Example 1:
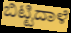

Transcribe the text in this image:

ಬಿಟ್ಟಿದಾಳೆ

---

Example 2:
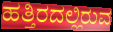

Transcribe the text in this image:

ಹತ್ತಿರದಲ್ಲಿರುವ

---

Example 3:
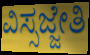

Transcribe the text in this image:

ವಿಸ್ಸಜ್ಜೇತಿ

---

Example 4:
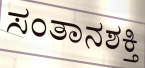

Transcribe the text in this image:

ಸಂತಾನಶಕ್ತಿ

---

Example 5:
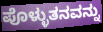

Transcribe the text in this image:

ಪೊಳ್ಳುತನವನ್ನು